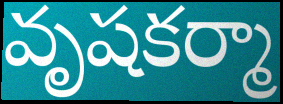
వృషకర్మా